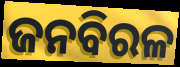
ଜନବିରଳ